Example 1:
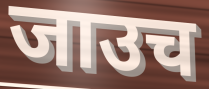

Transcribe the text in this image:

जाउच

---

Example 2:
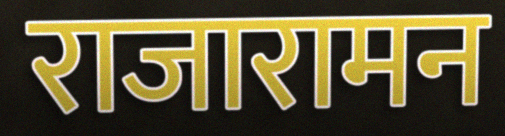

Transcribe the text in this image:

राजारामन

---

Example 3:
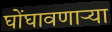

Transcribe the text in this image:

घोंघावणाऱ्या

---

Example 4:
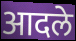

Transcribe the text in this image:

आदले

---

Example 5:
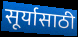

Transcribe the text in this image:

सूर्यासाठी